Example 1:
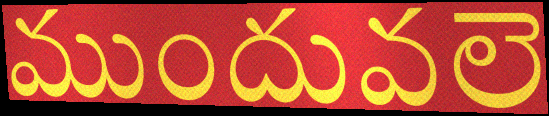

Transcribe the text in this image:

ముందువలె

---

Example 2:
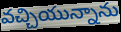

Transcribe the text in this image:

వచ్చియున్నాను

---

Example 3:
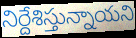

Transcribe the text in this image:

నిర్దేశిస్తున్నాయని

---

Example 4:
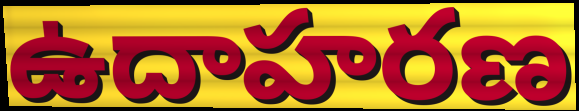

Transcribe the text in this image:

ఉదాహరణ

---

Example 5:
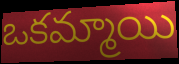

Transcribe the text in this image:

ఒకమ్మాయి